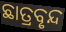
ଛାତ୍ରବୃନ୍ଦ